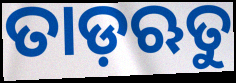
ତାଡ଼ଋତୁ